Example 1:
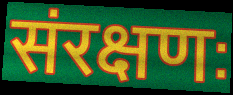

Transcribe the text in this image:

संरक्षणः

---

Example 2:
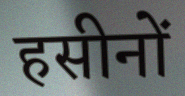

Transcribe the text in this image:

हसीनों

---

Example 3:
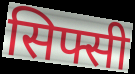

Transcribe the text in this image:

सिफ्सी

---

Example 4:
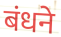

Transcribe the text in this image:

बंधने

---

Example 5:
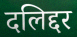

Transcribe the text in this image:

दलिद्दर